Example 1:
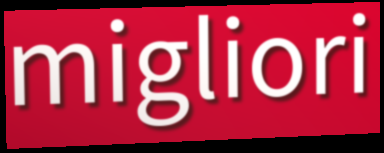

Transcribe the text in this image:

migliori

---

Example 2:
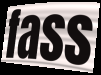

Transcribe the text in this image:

fass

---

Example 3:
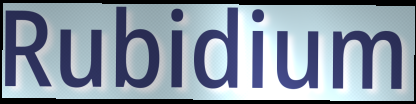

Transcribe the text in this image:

Rubidium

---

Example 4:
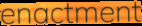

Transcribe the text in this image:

enactment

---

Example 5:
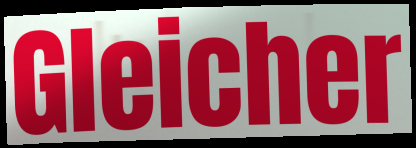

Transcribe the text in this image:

Gleicher